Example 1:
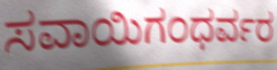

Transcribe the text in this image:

ಸವಾಯಿಗಂಧರ್ವರ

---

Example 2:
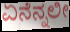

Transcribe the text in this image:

ಏನೆನ್ನಲೀ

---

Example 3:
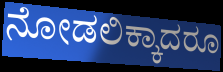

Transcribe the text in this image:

ನೋಡಲಿಕ್ಕಾದರೂ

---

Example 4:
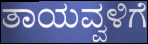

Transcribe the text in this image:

ತಾಯವ್ವಳಿಗೆ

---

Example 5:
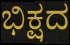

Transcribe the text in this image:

ಭಿಕ್ಷದ